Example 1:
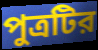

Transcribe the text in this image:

পুত্রটির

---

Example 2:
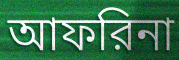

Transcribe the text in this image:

আফরিনা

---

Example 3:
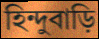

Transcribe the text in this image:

হিন্দুবাড়ি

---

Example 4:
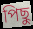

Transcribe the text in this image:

পিছু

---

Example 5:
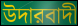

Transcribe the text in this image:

উদারবাদী